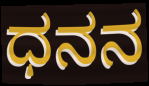
ಧನನ